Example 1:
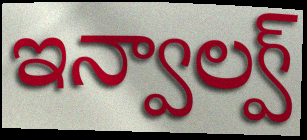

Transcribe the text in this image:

ఇన్వాల్వ్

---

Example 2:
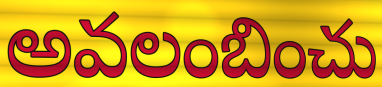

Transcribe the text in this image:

అవలంబించు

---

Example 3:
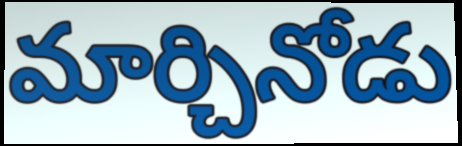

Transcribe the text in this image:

మార్చినోడు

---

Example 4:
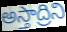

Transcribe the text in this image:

అస్తాద్రిని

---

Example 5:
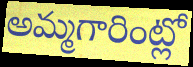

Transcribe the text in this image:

అమ్మగారింట్లో